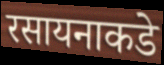
रसायनाकडे